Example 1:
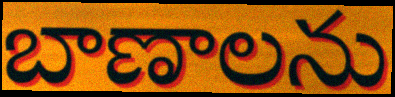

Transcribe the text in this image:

బాణాలను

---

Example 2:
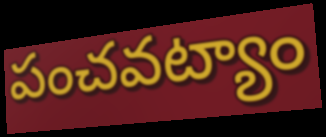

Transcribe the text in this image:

పంచవట్యాం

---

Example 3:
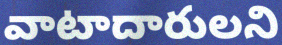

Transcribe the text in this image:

వాటాదారులని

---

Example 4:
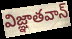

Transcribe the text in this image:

విజ్ఞాతవాన్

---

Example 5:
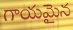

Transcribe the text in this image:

గాయమైన